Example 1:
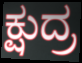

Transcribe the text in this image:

ಕ್ಷುದ್ರ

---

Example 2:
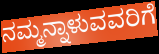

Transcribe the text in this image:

ನಮ್ಮನ್ನಾಳುವವರಿಗೆ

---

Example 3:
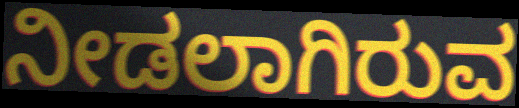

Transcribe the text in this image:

ನೀಡಲಾಗಿರುವ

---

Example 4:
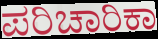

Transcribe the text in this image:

ಪರಿಚಾರಿಕಾ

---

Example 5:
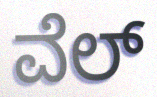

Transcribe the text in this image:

ವೆಲ್